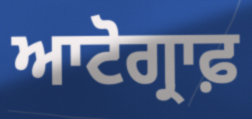
ਆਟੋਗ੍ਰਾਫ਼